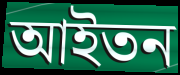
আইতন